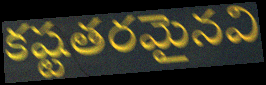
కష్టతరమైనవి